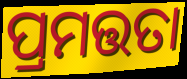
ପ୍ରମତ୍ତତା